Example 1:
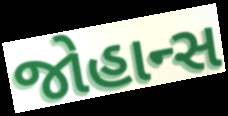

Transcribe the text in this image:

જોહાન્સ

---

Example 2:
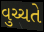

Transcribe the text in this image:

વુચ્ચતે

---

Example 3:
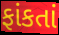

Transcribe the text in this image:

ફાંકતાં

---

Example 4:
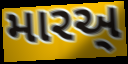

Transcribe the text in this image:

મારઅ્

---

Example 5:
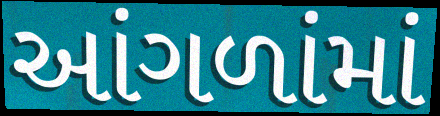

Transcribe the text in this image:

આંગળાંમાં